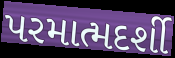
પરમાત્મદર્શી